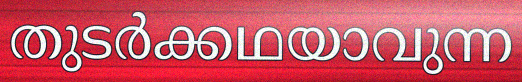
തുടർക്കഥയാവുന്ന